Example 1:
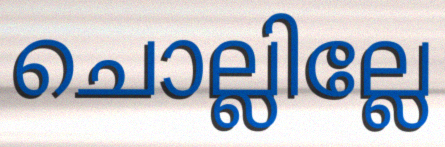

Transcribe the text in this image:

ചൊല്ലില്ലേ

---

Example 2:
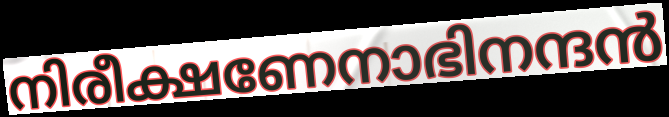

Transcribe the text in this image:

നിരീക്ഷണേനാഭിനന്ദൻ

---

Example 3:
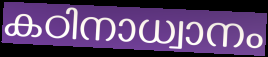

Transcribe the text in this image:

കഠിനാധ്വാനം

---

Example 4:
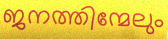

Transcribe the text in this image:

ജനത്തിന്മേലും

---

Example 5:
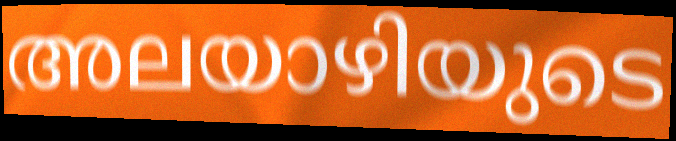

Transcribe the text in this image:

അലയാഴിയുടെ